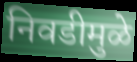
निवडीमुळे